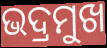
ଭଦ୍ରମୁଖ